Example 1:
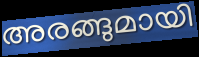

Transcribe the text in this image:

അരങ്ങുമായി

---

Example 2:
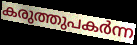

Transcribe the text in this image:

കരുത്തുപകർന്ന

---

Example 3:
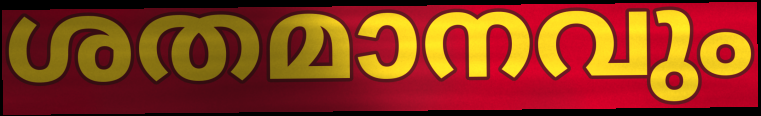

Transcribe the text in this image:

ശതമാനവും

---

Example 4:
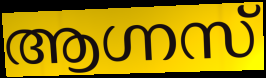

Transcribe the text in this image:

ആഗ്നസ്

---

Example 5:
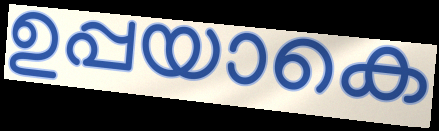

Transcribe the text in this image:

ഉപ്പയാകെ